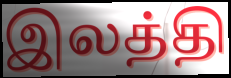
இலத்தி